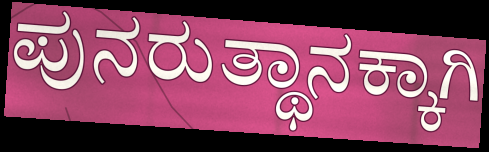
ಪುನರುತ್ಥಾನಕ್ಕಾಗಿ